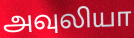
அவுலியா